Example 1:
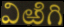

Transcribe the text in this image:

విఱిగి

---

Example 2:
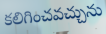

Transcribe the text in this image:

కలిగించవచ్చును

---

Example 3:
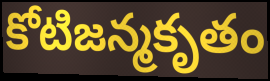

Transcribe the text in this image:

కోటిజన్మకృతం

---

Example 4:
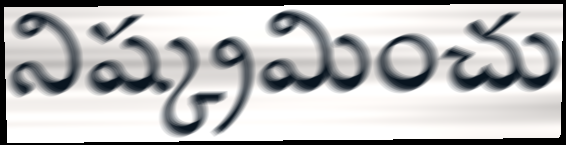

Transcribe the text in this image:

నిష్క్రమించు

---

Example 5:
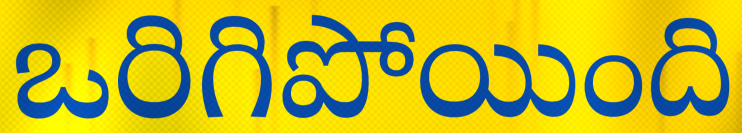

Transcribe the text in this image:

ఒరిగిపోయింది